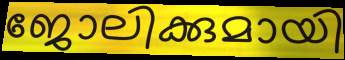
ജോലിക്കുമായി